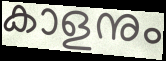
കാളനും